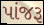
પાંજરૂ